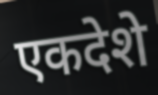
एकदेशे